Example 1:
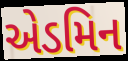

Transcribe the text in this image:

એડમિન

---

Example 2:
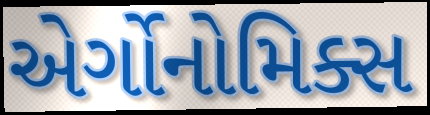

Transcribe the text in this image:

એર્ગોનોમિક્સ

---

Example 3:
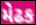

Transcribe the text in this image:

મેઢક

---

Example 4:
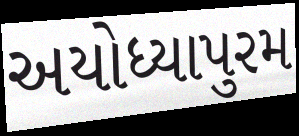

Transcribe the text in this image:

અયોધ્યાપુરમ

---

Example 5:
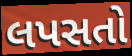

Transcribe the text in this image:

લપસતો